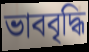
ভাববৃদ্ধি